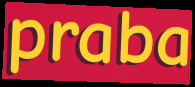
praba